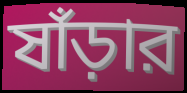
ষাঁড়ার